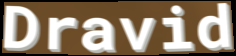
Dravid